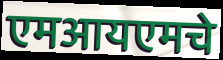
एमआयएमचे